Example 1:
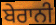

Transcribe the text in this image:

ਬੇਰਾਨੀ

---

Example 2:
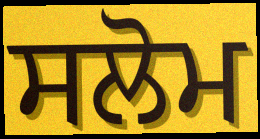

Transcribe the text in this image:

ਸਲੋਮ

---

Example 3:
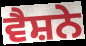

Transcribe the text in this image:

ਵੈਸ਼ਨੇ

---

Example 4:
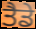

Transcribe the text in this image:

ਤੈਡੇ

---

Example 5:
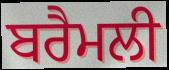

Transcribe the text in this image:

ਬਰੈਮਲੀ